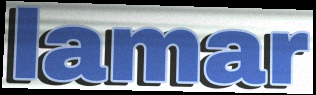
lamar